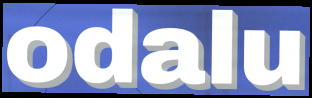
odalu